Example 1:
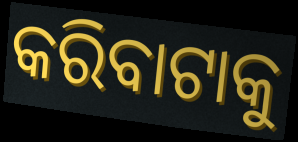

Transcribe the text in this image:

କରିବାଟାକୁ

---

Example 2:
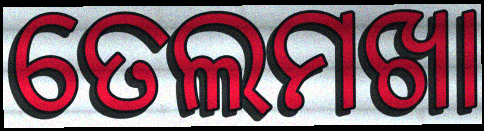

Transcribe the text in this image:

ତେଲମଖା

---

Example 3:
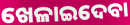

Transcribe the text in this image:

ଖେଳାଇଦେବା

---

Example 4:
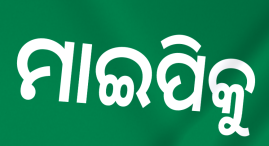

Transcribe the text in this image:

ମାଇପିକୁ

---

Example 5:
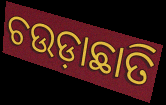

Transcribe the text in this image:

ଚଉଡ଼ାଛାତି